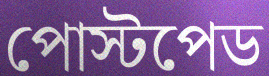
পোস্টপেড